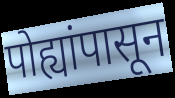
पोह्यांपासून